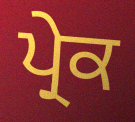
ਪ੍ਰੇਕ